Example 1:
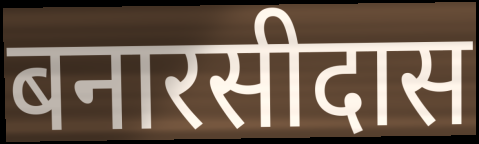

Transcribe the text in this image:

बनारसीदास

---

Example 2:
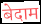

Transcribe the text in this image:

बेदाम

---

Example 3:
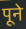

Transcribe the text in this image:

पूने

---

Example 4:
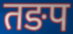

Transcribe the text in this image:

तङप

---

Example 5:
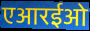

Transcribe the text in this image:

एआरईओ